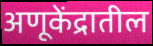
अणूकेंद्रातील